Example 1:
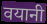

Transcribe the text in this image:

वयानी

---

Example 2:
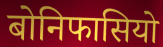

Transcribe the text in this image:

बोनिफासियो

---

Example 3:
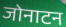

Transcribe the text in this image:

जोनाटन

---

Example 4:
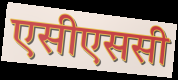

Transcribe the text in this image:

एसीएससी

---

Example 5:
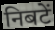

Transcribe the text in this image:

निबटें